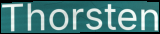
Thorsten